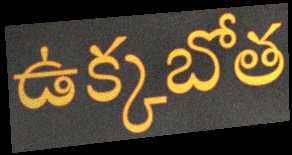
ఉక్కబోత